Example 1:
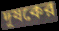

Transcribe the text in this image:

দূষকের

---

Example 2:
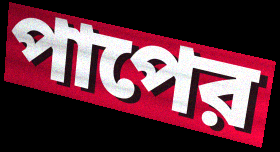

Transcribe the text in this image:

পাপের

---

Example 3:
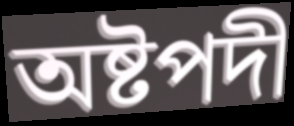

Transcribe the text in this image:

অষ্টপদী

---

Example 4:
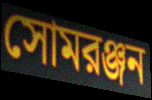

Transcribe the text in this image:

সোমরঞ্জন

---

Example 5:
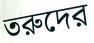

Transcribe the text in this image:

তরুদের